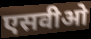
एसवीओ